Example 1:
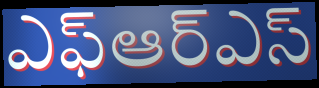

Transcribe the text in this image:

ఎఫ్ఆర్ఎస్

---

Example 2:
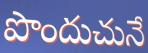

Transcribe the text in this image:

పొందుచునే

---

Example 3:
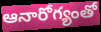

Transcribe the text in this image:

ఆనారోగ్యంతో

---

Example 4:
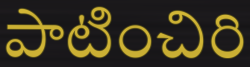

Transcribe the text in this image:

పాటించిరి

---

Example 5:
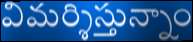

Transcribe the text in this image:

విమర్శిస్తున్నాం